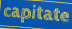
capitate